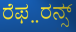
ರೆಫ಼ರನ್ಸ್